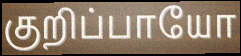
குறிப்பாயோ